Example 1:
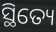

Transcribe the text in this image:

ସ୍ଥିତ୍ୟେ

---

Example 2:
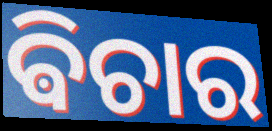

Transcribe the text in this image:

ଵିଚାର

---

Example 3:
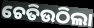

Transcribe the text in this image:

ଚେତିଉଠିଲା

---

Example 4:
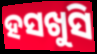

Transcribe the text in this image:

ହସଖୁସି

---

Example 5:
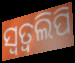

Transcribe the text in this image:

ସ୍ଵତ୍ଵଲିପି